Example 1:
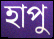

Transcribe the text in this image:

হাপু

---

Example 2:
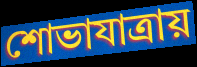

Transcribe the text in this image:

শোভাযাত্রায়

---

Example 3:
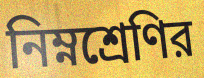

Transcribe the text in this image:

নিম্নশ্রেণির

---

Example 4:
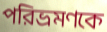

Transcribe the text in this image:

পরিভ্রমণকে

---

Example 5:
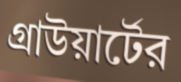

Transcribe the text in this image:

গ্রাউয়ার্টের